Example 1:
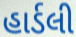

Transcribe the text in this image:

હાર્ડલી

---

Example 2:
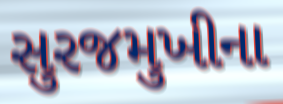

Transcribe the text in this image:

સુરજમુખીના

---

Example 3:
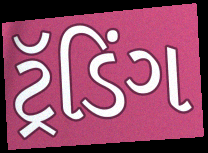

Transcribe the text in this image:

ટ્રૅડિંગ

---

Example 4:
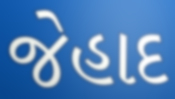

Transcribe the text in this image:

જેહાદ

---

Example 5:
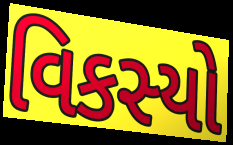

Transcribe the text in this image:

વિકસ્યો